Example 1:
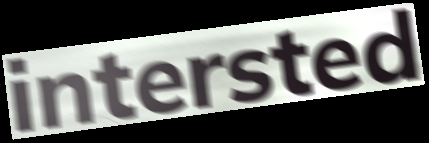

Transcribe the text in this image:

intersted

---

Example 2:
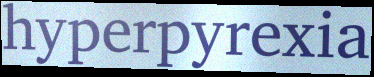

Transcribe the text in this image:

hyperpyrexia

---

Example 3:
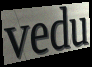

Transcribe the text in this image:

vedu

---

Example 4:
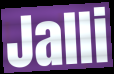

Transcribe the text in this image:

Jalli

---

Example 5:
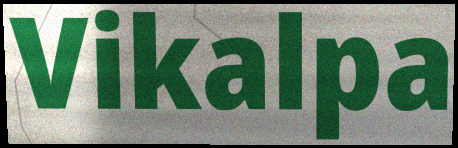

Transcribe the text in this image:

Vikalpa